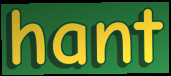
hant